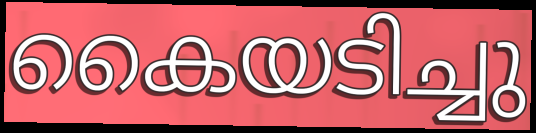
കൈയടിച്ചു